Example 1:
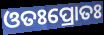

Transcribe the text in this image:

ଓତଃପ୍ରୋତଃ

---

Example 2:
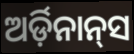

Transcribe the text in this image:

ଅର୍ଡ଼ିନାନ୍‌ସ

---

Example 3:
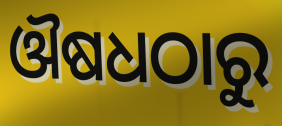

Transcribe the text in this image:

ଔଷଧଠାରୁ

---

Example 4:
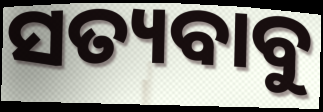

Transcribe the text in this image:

ସତ୍ୟବାବୁ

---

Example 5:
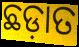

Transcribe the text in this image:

ଛଡ଼ାତ